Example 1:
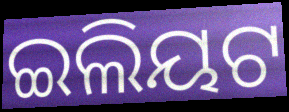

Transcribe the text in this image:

ଇଲିୟଟ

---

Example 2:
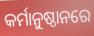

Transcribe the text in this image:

କର୍ମାନୁଷ୍ଠାନରେ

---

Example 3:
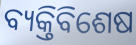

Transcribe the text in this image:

ବ୍ୟକ୍ତିବିଶେଷ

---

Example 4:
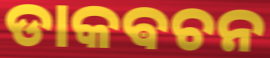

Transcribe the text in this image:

ଡାକଵଚନ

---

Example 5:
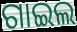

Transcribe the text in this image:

ଗାଇଲ